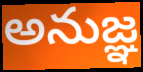
అనుజ్ఞ